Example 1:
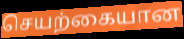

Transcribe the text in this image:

செயற்கையான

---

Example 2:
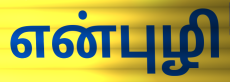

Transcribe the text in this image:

என்புழி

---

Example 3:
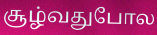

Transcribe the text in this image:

சூழ்வதுபோல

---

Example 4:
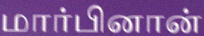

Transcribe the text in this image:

மார்பினான்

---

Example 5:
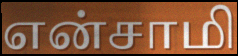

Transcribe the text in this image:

என்சாமி